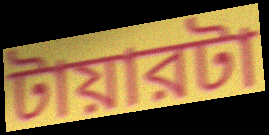
টায়ারটা